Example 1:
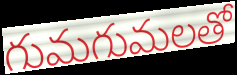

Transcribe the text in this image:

గుమగుమలతో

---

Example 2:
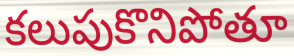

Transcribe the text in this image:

కలుపుకొనిపోతూ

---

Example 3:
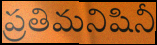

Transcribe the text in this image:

ప్రతిమనిషినీ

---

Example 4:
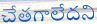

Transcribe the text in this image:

చేతగాలేదని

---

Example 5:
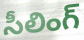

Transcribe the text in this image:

సీలింగ్